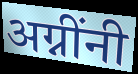
अग्नींनी